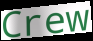
Crew